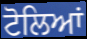
ਟੋਲਿਆਂ